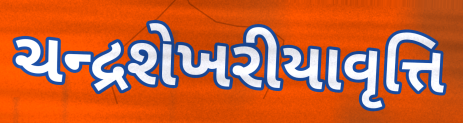
ચન્દ્રશેખરીયાવૃત્તિ